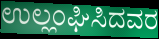
ಉಲ್ಲಂಘಿಸಿದವರ